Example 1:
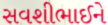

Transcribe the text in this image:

સવશીભાઈને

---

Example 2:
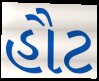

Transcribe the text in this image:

હૌટ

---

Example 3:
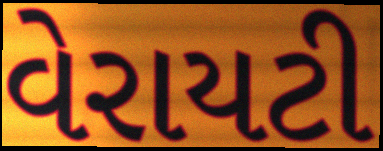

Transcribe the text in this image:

વેરાયટી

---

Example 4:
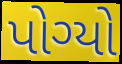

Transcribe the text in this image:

પોગ્યો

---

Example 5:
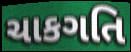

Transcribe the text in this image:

ચાકગતિ